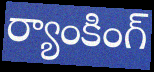
ర్యాంకింగ్